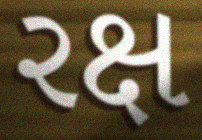
રક્ષ